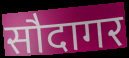
सौदागर